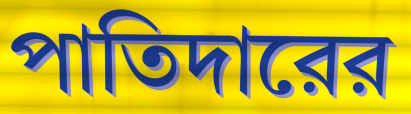
পাতিদারের